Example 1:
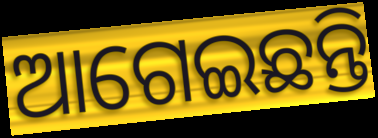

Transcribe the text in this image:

ଆଗେଇଛନ୍ତି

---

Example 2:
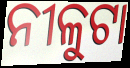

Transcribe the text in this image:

ନୀଳୁଟା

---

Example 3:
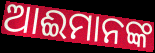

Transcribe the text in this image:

ଆଈମାନଙ୍କ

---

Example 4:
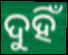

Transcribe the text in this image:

ଦୁହିଁ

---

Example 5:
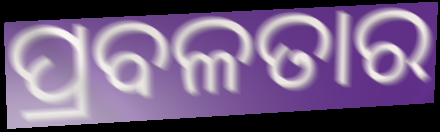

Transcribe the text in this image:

ପ୍ରବଳତାର